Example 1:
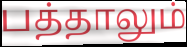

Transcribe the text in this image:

பத்தாலும்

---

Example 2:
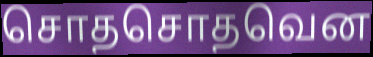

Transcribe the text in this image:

சொதசொதவென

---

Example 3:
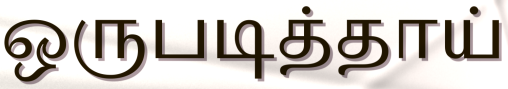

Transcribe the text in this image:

ஒருபடித்தாய்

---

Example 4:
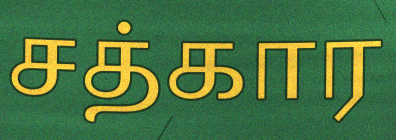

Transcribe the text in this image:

சத்கார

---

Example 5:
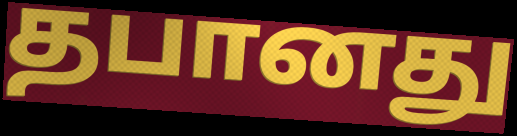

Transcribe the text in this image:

தபானது